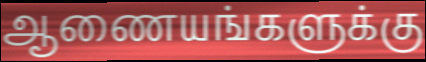
ஆணையங்களுக்கு